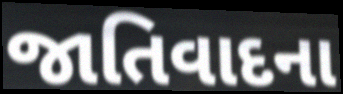
જાતિવાદના